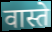
वास्ते